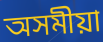
অসমীয়া